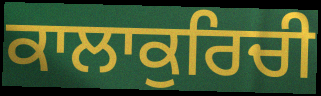
ਕਾਲਾਕੁਰਿਚੀ